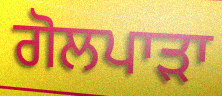
ਗੋਲਪਾੜਾ